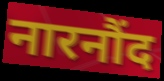
नारनौंद